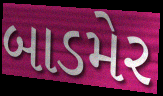
બાડમેર